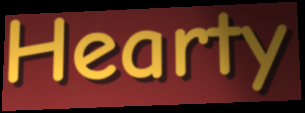
Hearty